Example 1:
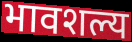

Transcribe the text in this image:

भावशल्य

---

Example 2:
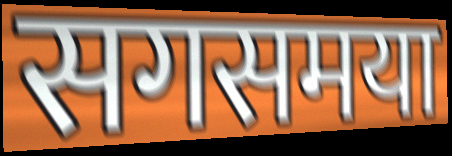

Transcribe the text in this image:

सगसमया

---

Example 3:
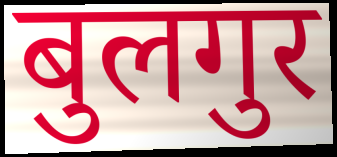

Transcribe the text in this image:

बुलगुर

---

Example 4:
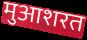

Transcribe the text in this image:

मुआशरत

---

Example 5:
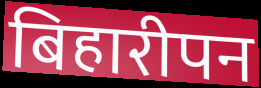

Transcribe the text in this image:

बिहारीपन